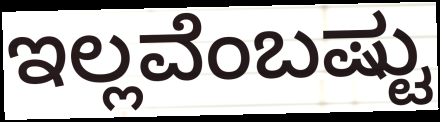
ಇಲ್ಲವೆಂಬಷ್ಟು